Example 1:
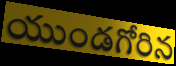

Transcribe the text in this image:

యుండగోరిన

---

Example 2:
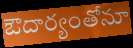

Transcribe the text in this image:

ఔదార్యంతోనూ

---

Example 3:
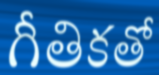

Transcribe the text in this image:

గీతికతో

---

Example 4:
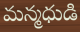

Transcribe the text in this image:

మన్మధుడి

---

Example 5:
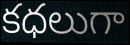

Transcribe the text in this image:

కధలుగా